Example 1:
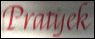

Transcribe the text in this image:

Pratyek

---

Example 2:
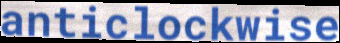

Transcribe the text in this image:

anticlockwise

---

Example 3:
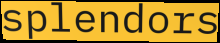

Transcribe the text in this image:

splendors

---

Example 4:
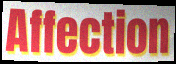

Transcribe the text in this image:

Affection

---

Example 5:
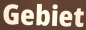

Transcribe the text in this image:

Gebiet